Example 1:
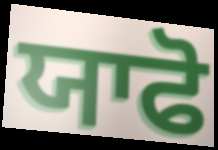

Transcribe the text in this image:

ਯਾਫੋ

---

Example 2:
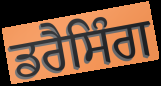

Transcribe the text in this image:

ਡਰੈਸਿੰਗ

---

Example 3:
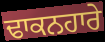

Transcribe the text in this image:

ਢਾਕਨਹਾਰੇ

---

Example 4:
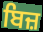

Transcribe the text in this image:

ਬਿਜ਼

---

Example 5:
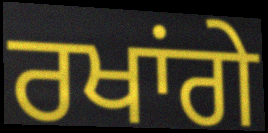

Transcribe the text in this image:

ਰਖਾਂਗੇ